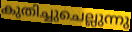
കുതിച്ചുചെല്ലുന്നു